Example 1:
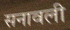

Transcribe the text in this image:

सनावली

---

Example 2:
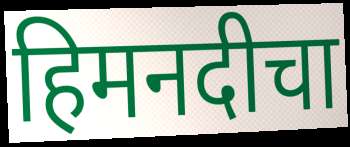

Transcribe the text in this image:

हिमनदीचा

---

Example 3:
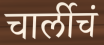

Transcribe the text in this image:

चार्लीचं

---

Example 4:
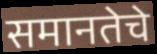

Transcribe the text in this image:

समानतेचे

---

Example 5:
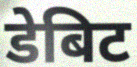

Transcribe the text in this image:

डेबिट